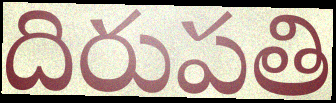
దిరుపతి